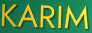
KARIM